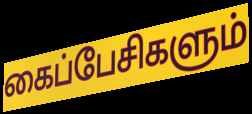
கைப்பேசிகளும்